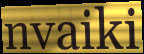
nvaiki